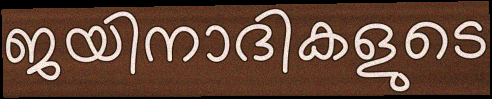
ജയിനാദികളുടെ